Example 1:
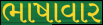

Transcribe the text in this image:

ભાષાવાર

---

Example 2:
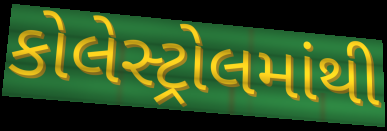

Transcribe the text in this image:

કોલેસ્ટ્રોલમાંથી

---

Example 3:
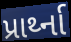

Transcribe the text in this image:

પ્રાર્થ્ના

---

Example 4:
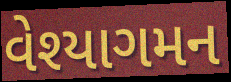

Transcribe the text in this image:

વેશ્યાગમન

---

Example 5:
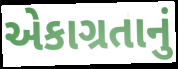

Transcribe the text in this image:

એકાગ્રતાનું